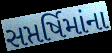
સપ્તર્ષિમાંના